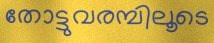
തോട്ടുവരമ്പിലൂടെ